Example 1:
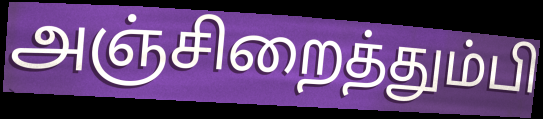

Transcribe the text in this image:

அஞ்சிறைத்தும்பி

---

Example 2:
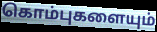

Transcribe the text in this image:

கொம்புகளையும்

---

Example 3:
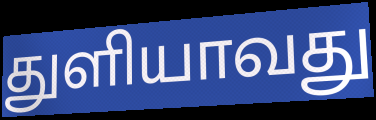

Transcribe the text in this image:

துளியாவது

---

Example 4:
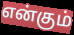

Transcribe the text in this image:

என்கும்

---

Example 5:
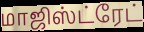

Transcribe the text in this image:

மாஜிஸ்ட்ரேட்